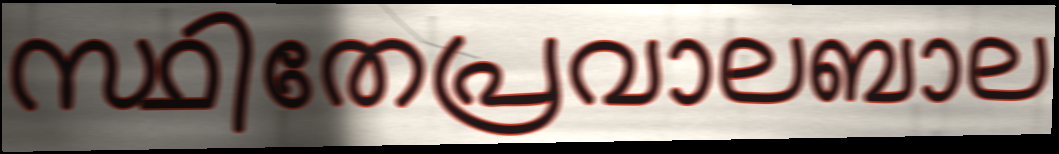
സ്ഥിതേപ്രവാലബാല